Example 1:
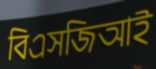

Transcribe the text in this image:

বিএসজিআই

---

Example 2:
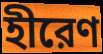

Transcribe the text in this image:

হীরেণ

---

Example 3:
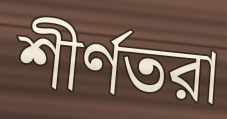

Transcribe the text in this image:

শীর্ণতরা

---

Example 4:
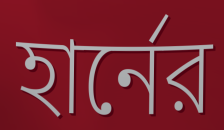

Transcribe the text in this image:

হার্নের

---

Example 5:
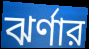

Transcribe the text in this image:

ঝর্ণার